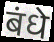
बंधे